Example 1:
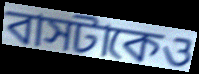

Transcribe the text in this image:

বাসটাকেও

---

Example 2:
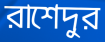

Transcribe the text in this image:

রাশেদুর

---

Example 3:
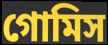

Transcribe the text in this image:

গোমিস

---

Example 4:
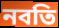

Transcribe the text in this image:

নবতি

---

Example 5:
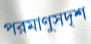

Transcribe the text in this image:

পরমাণুসদৃশ